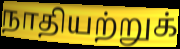
நாதியற்றுக்